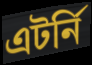
এটর্নি